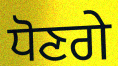
ਧੋਣਗੇ